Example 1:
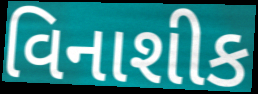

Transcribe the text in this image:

વિનાશીક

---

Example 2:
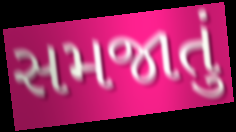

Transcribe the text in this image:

સમજાતું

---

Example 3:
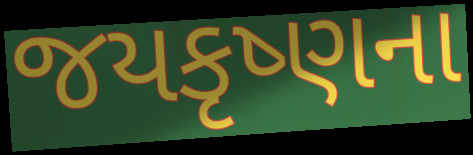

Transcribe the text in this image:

જયકૃષ્ણના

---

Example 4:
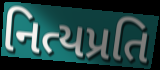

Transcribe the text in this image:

નિત્યપ્રતિ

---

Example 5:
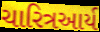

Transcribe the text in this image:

ચારિત્રઆર્ય